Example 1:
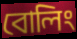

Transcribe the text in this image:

বোলিং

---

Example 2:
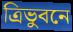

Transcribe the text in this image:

ত্রিভুবনে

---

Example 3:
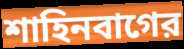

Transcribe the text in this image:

শাহিনবাগের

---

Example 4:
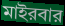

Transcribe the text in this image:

মাইরবার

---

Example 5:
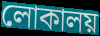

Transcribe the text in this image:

লোকালয়